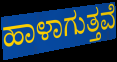
ಹಾಳಾಗುತ್ತವೆ